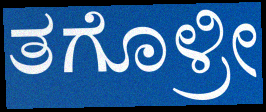
ತಗೊಳ್ರೀ